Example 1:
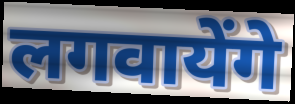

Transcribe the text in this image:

लगवायेंगे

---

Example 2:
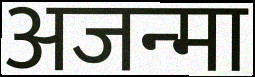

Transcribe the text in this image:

अजन्‍मा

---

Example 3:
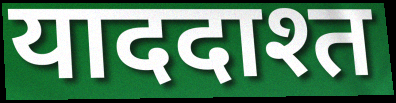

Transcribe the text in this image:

याददाश्त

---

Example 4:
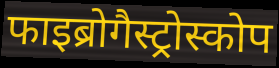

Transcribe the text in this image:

फाइब्रोगैस्ट्रोस्कोप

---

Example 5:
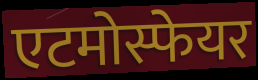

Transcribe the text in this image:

एटमोस्फेयर